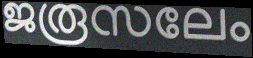
ജരൂസലേം